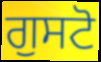
ਗੁਸਟੋ